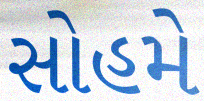
સોહમે